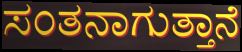
ಸಂತನಾಗುತ್ತಾನೆ